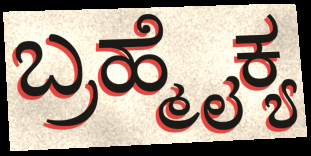
ಬ್ರಹ್ಮೈಕ್ಯ